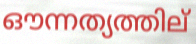
ഔന്നത്യത്തില്